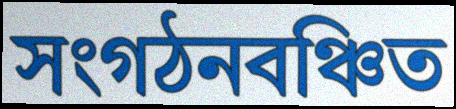
সংগঠনবঞ্চিত